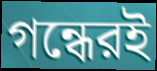
গন্ধেরই